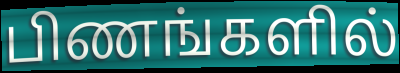
பிணங்களில்